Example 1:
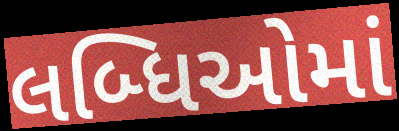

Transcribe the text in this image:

લબ્ધિઓમાં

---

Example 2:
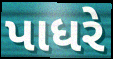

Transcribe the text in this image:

પાધરે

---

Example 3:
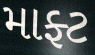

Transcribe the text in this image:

માફ્ટ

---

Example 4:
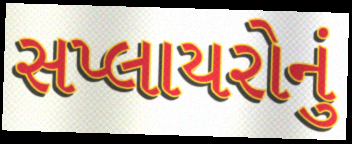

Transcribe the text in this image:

સપ્લાયરોનું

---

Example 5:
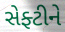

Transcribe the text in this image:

સેફ્ટીને